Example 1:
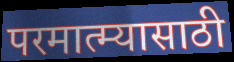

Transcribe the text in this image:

परमात्म्यासाठी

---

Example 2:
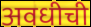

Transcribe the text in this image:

अवधीची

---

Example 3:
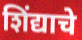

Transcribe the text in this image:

शिंद्याचे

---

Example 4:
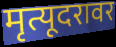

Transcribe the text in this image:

मृत्यूदरावर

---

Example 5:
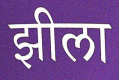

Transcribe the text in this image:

झीला